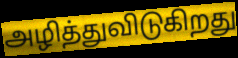
அழித்துவிடுகிறது